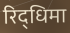
रिद्धिमा